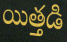
యిత్తడి